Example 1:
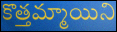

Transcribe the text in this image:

కొత్తమ్మాయిని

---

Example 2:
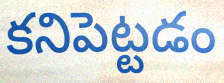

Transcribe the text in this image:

కనిపెట్టడం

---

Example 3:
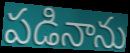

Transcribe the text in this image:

పడినాను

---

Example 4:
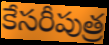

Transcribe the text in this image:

కేసరీపుత్ర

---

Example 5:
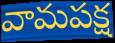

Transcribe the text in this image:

వామపక్ష